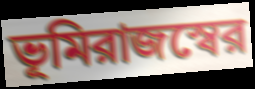
ভূমিরাজস্বের